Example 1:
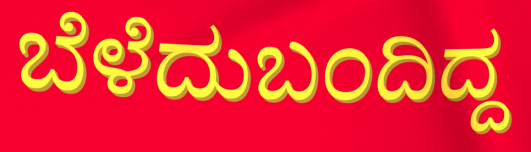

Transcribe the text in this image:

ಬೆಳೆದುಬಂದಿದ್ದ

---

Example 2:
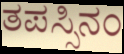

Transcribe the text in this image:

ತಪಸ್ಸಿನಂ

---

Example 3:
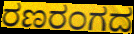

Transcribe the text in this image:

ರಣರಂಗದ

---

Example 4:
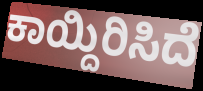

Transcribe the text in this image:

ಕಾಯ್ದಿರಿಸಿದೆ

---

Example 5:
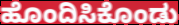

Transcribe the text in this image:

ಹೊಂದಿಸಿಕೊಂಡು